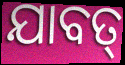
ଯାବତ୍